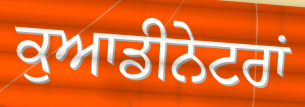
ਕੁਆਡੀਨੇਟਰਾਂ